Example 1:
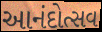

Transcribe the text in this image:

આનંદોત્સવ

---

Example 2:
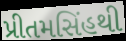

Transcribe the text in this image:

પ્રીતમસિંહથી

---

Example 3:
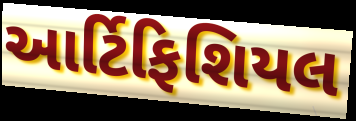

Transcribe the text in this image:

આર્ટિફિશિયલ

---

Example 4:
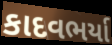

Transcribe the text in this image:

કાદવભર્યા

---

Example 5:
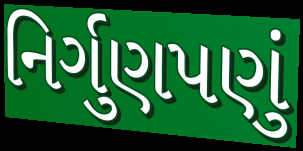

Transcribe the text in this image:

નિર્ગુણપણું